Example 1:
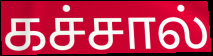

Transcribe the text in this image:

கச்சால்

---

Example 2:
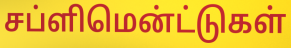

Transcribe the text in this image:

சப்ளிமென்ட்டுகள்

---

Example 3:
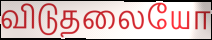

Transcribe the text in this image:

விடுதலையோ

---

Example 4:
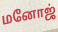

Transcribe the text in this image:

மனோஜ்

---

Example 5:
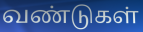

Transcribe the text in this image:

வண்டுகள்